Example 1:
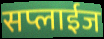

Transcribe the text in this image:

सप्लाईज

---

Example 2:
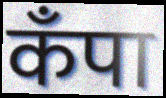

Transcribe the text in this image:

कँपा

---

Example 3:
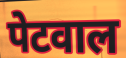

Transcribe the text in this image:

पेटवाल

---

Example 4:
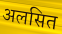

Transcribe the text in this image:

अलसित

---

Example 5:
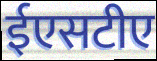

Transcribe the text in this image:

ईएसटीए